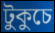
টুকুচে